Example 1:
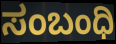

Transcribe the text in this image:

ಸಂಬಂಧಿ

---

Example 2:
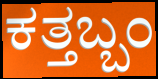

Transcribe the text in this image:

ಕತ್ತಬ್ಬಂ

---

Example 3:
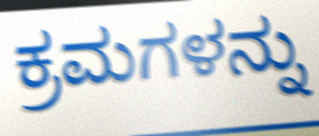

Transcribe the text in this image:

ಕ್ರಮಗಳನ್ನು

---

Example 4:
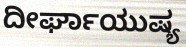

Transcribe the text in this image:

ದೀರ್ಘಾಯುಷ್ಯ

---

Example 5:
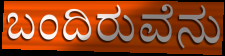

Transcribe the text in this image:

ಬಂದಿರುವೆನು